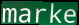
marke